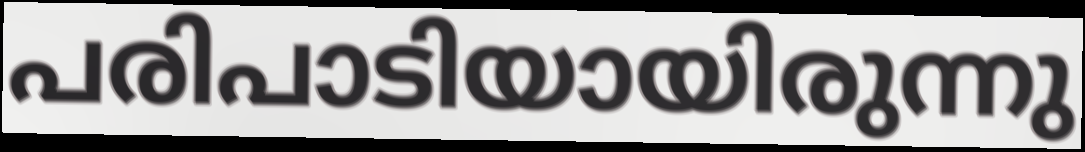
പരിപാടിയായിരുന്നു